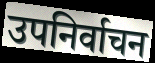
उपनिर्वाचन